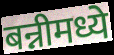
बन्नीमध्ये